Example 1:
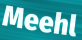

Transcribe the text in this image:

Meehl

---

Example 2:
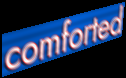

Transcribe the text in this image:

comforted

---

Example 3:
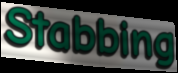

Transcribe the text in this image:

Stabbing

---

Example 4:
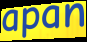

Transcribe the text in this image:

apan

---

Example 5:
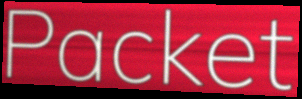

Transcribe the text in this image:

Packet